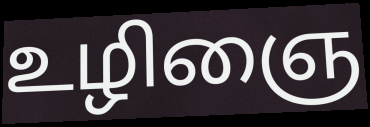
உழிஞை